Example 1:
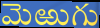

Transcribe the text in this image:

మెఱుగు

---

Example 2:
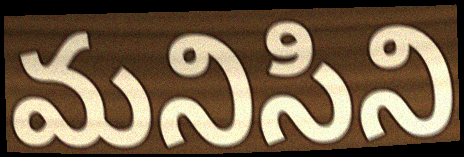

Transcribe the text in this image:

మనిసిని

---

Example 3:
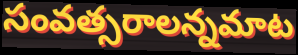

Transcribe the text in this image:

సంవత్సరాలన్నమాట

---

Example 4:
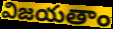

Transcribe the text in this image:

విజయతాం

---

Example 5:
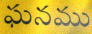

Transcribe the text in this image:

ఘనము